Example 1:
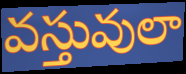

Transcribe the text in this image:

వస్తువులా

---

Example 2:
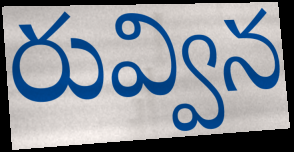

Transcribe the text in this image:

రువ్విన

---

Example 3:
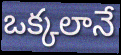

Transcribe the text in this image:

ఒక్కలానే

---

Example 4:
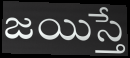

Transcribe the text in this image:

జయిస్తే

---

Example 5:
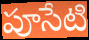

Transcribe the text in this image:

పూసేటి